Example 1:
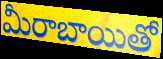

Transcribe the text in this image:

మీరాబాయితో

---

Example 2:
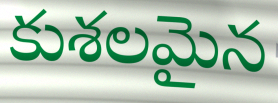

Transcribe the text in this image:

కుశలమైన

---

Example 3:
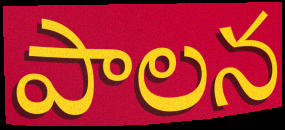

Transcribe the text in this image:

పాలన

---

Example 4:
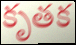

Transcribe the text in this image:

కృతక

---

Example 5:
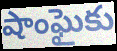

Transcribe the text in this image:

షాంఘైకు